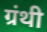
ग्रंथी